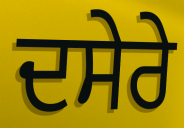
ਦਸੇਰੇ